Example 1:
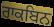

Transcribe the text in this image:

ਰਾਕਬਿਨ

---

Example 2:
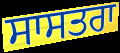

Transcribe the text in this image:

ਸਾਸਤਰਾ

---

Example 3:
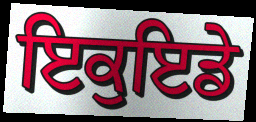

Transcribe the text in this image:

ਇਕੁਇਡੇ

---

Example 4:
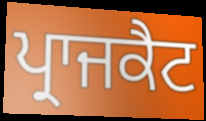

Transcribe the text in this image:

ਪ੍ਰਾਜਕੈਟ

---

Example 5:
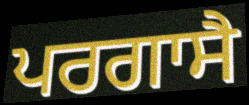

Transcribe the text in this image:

ਪਰਗਾਸੈ